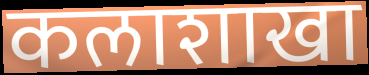
कलाशाखा